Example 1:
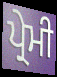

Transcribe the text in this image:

ਪ੍ਰੇਮੀ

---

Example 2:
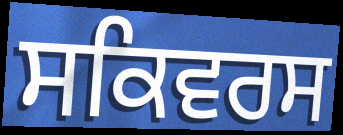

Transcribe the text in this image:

ਸਕਿਵਰਸ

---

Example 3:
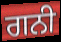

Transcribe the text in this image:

ਗਨੀ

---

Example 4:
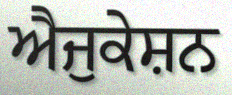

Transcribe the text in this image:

ਐਜੁਕੇਸ਼ਨ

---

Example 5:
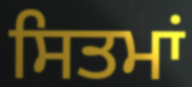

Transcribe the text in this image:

ਸਿਤਮਾਂ